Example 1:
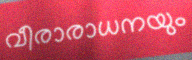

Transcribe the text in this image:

വീരാരാധനയും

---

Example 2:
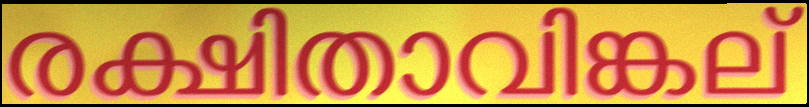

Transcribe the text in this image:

രക്ഷിതാവിങ്കല്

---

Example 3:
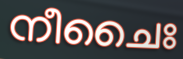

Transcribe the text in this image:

നീചൈഃ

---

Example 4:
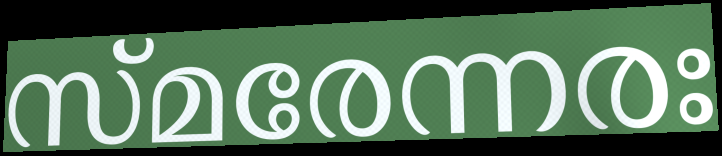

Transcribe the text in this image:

സ്മരേന്നരഃ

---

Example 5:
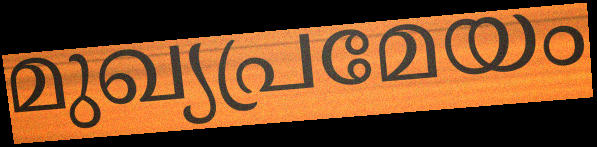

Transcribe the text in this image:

മുഖ്യപ്രമേയം